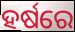
ହର୍ଷରେ